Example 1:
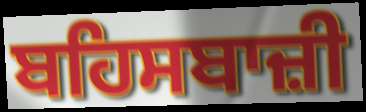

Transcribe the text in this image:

ਬਹਿਸਬਾਜ਼ੀ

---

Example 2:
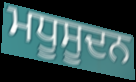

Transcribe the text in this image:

ਮਧੂਸੂਦਨ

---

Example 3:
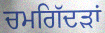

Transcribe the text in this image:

ਚਮਗਿੱਦੜਾਂ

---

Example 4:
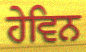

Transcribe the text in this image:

ਹੇਵਿਨ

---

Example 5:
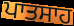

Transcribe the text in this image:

ਪਾਤਸਾਹ